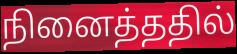
நினைத்ததில்